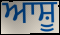
ਆਸ਼ੂ